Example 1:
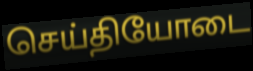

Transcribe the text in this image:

செய்தியோடை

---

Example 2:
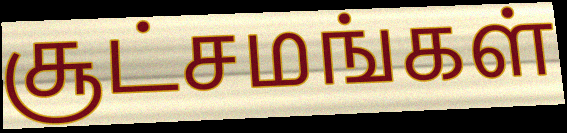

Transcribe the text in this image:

சூட்சமங்கள்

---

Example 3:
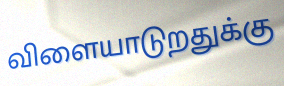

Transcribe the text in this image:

விளையாடுறதுக்கு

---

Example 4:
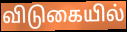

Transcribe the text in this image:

விடுகையில்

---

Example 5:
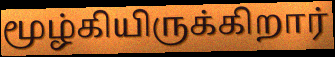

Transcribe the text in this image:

மூழ்கியிருக்கிறார்